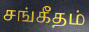
சங்கீதம்